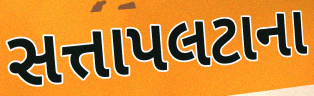
સત્તાપલટાના